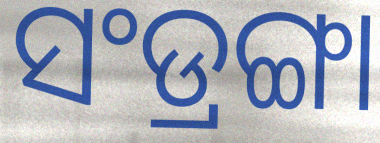
ସଂଡ୍ରଙ୍ଗା